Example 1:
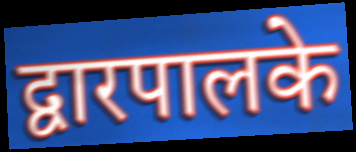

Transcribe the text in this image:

द्वारपालके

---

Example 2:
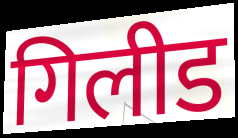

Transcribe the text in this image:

गिलीड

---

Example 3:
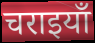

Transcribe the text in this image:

चराइयाँ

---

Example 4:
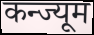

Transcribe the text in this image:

कन्ज्यूम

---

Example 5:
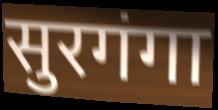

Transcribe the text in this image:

सुरगंगा